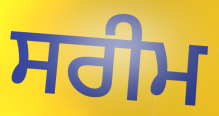
ਸਰੀਮ